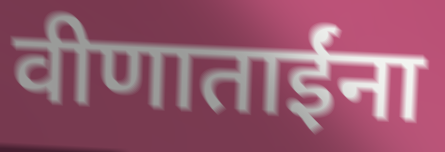
वीणाताईंना